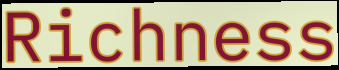
Richness